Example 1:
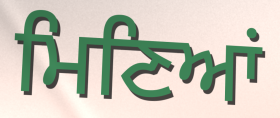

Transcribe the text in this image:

ਮਿਣਿਆਂ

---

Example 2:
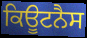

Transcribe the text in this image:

ਕਿਊਟਨੈਸ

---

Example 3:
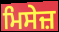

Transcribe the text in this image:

ਮਿਸੇਜ਼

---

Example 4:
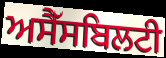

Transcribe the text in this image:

ਅਸੈੱਸਬਿਲਟੀ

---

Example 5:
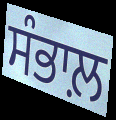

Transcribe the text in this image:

ਸੰਭਾਲ਼